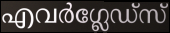
എവർഗ്ലേഡ്സ്